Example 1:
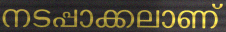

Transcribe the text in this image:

നടപ്പാക്കലാണ്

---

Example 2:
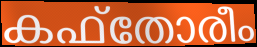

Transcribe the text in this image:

കഫ്തോരീം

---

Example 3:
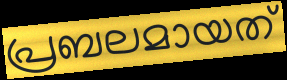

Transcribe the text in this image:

പ്രബലമായത്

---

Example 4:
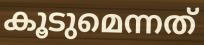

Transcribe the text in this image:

കൂടുമെന്നത്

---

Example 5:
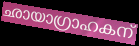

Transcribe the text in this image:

ഛായാഗ്രാഹകന്